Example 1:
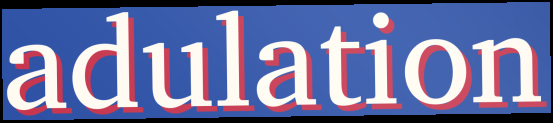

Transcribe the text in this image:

adulation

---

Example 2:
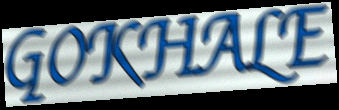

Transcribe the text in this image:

GOKHALE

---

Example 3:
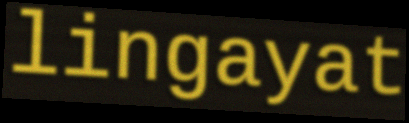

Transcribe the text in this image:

lingayat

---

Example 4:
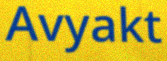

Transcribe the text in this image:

Avyakt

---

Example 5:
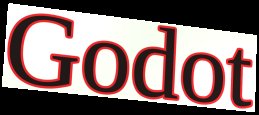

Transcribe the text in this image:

Godot